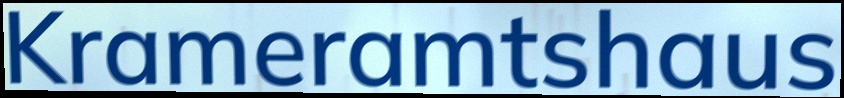
Krameramtshaus